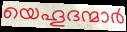
യെഹൂദന്മാർ